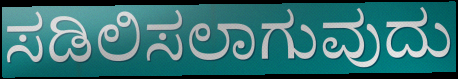
ಸಡಿಲಿಸಲಾಗುವುದು